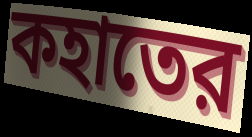
কহাতের